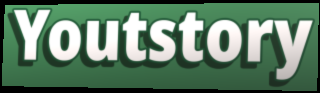
Youtstory